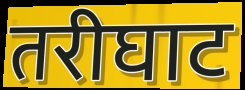
तरीघाट